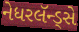
નેધરલૅન્ડ્સે